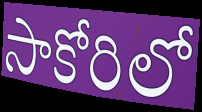
సాకోరిలో